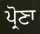
ਪ੍ਰੋਣਾ